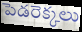
పెడరెక్కలు